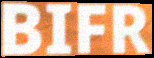
BIFR